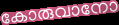
കോരുവാനോ